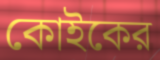
কোইকের